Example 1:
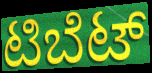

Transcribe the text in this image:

ಟಿಬೆಟ್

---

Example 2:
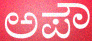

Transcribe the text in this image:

ಅಪೌ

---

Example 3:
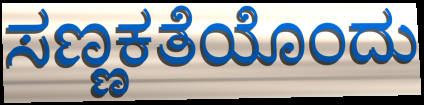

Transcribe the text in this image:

ಸಣ್ಣಕತೆಯೊಂದು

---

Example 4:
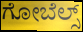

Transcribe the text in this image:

ಗೋಬೆಲ್ಸ್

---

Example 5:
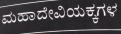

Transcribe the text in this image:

ಮಹಾದೇವಿಯಕ್ಕಗಳ